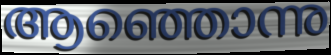
ആഞ്ഞൊന്നു